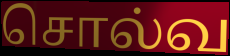
சொல்வ